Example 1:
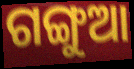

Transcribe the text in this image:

ଗଙ୍ଗୁଆ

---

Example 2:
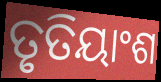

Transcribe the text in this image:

ତୃତିୟାଂଶ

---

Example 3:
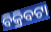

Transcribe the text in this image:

ବିକ୍ରିବଟା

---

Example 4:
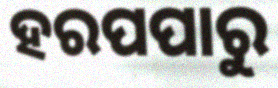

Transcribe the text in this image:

ହରପପାରୁ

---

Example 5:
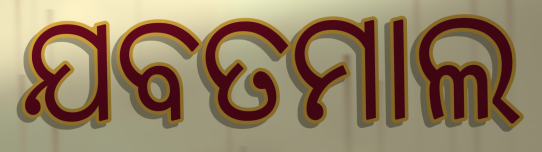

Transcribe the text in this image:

ଯବତମାଲ